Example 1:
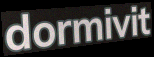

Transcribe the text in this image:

dormivit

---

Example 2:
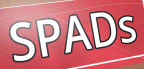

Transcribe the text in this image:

SPADs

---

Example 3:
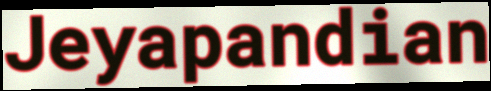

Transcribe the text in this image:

Jeyapandian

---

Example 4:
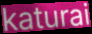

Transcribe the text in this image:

katurai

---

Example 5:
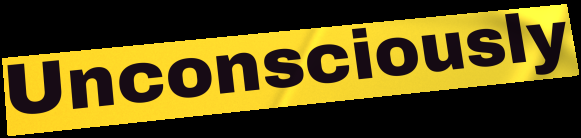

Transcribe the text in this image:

Unconsciously